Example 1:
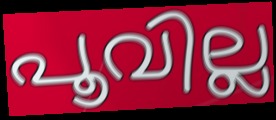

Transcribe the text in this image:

പൂവില്ല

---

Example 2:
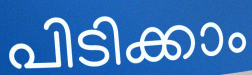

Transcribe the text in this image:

പിടിക്കാം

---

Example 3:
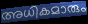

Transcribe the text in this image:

അധികമാരും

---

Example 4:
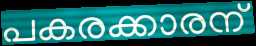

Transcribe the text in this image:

പകരക്കാരന്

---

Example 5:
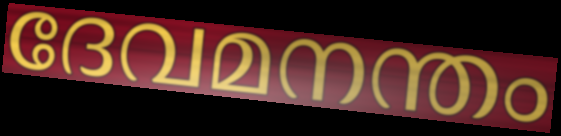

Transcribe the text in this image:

ദേവമനന്തം